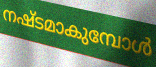
നഷ്ടമാകുമ്പോൾ